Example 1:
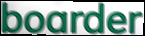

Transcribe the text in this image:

boarder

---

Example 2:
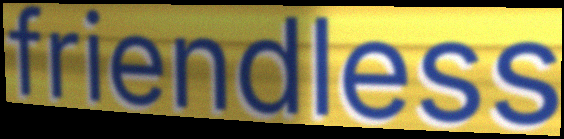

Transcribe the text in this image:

friendless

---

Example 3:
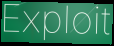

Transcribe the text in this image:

Exploit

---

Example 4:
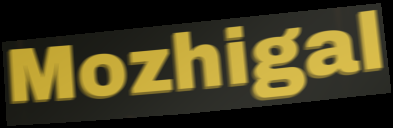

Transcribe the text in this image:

Mozhigal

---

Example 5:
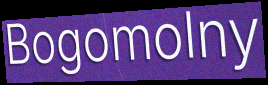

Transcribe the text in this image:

Bogomolny